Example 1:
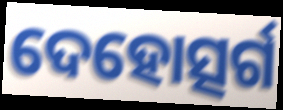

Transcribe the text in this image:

ଦେହୋତ୍ସର୍ଗ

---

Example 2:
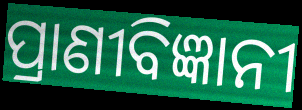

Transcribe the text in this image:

ପ୍ରାଣୀବିଜ୍ଞାନୀ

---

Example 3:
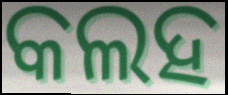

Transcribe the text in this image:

କଲହ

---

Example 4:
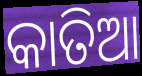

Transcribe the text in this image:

କାତିଆ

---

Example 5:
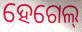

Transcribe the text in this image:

ହେଗେଲ୍